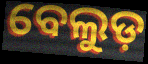
ବେଲୁଡ଼